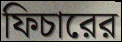
ফিচারের